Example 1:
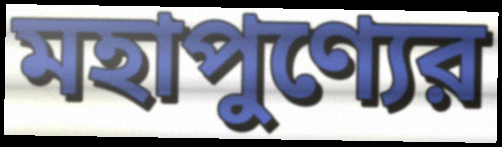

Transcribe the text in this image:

মহাপুণ্যের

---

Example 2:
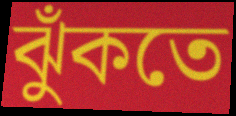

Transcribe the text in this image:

ঝুঁকতে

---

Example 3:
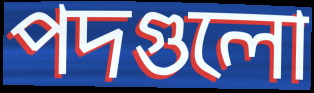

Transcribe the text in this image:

পদগুলো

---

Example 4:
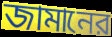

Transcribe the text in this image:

জামানের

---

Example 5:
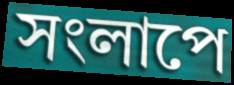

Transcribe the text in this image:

সংলাপে